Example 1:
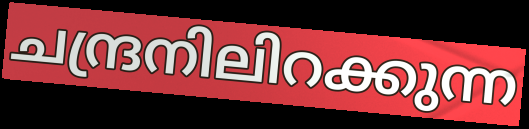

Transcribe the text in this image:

ചന്ദ്രനിലിറക്കുന്ന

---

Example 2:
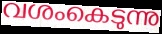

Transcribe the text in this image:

വശംകെടുന്നു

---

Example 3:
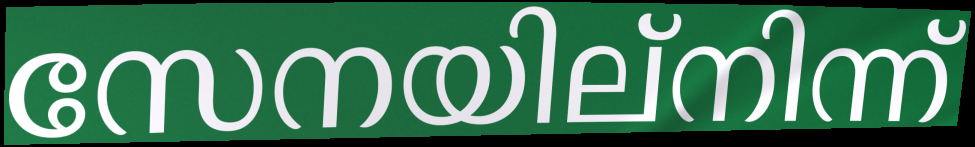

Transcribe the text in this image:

സേനയില്നിന്ന്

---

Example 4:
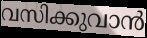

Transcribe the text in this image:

വസിക്കുവാൻ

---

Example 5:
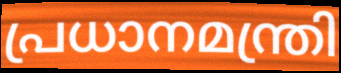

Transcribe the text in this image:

പ്രധാനമന്ത്രി